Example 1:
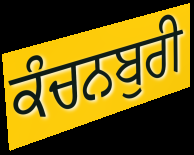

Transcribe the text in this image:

ਕੰਚਨਬੁਰੀ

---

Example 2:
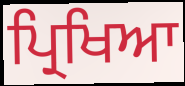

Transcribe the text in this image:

ਪ੍ਰਿਖਿਆ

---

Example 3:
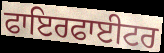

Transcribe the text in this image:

ਫਾਇਰਫਾਈਟਰ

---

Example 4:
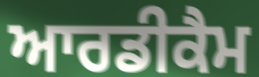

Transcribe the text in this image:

ਆਰਡੀਕੈਮ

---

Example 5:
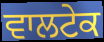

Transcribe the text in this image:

ਵਾਲਟੇਕ